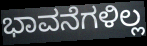
ಭಾವನೆಗಳಿಲ್ಲ